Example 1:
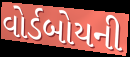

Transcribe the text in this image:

વોર્ડબોયની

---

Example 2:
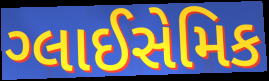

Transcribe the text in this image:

ગ્લાઈસેમિક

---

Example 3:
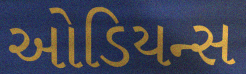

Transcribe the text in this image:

ઓડિયન્સ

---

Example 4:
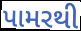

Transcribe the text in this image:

પામરથી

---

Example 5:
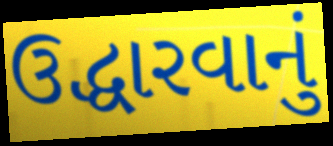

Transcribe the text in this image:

ઉદ્ધારવાનું